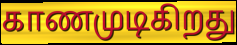
காணமுடிகிறது